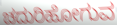
ಚದುರಿಹೋಗುವ